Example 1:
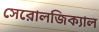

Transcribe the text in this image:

সেরোলজিক্যাল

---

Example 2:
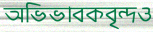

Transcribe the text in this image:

অভিভাবকবৃন্দও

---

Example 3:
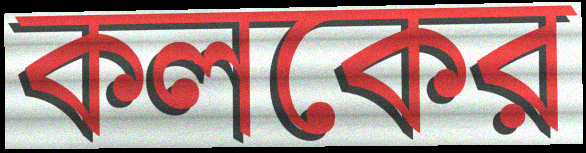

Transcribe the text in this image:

কলকের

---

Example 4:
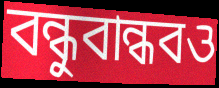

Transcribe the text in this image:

বন্ধুবান্ধবও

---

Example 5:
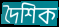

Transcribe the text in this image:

দৈশিক